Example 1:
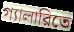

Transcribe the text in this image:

গ্যালারিতে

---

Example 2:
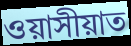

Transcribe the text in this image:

ওয়াসীয়াত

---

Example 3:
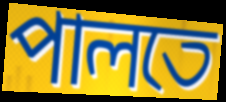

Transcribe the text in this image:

পালতে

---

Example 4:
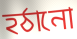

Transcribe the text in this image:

হঠানো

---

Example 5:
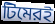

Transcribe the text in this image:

টিমেরই